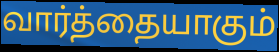
வார்த்தையாகும்